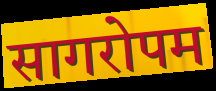
सागरोपम